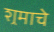
श्रमाचे